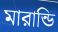
মারান্ডি